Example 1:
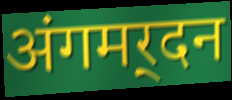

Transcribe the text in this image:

अंगमर्दन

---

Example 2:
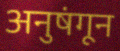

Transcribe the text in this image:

अनुषंगून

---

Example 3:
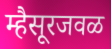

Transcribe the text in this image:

म्हैसूरजवळ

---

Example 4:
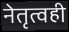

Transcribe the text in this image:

नेतृत्वही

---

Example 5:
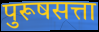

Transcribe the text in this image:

पुरूषसत्ता